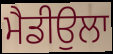
ਮੈਡੀਉਲਾ